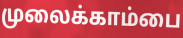
முலைக்காம்பை